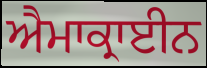
ਐਮਾਕ੍ਰਾਈਨ